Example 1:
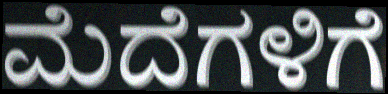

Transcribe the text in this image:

ಮೆದೆಗಳಿಗೆ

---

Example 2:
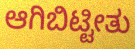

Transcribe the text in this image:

ಆಗಿಬಿಟ್ಟೀತು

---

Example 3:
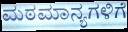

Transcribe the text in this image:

ಮಠಮಾನ್ಯಗಳಿಗೆ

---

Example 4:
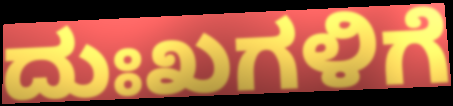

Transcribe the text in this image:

ದುಃಖಗಳಿಗೆ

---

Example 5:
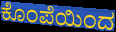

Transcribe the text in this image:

ಕೊಂಪೆಯಿಂದ